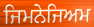
ਜਿਮਨੇਜਿਅਮ